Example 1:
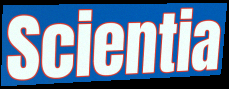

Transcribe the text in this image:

Scientia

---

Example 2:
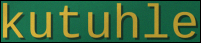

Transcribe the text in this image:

kutuhle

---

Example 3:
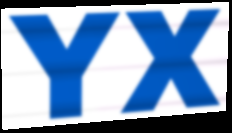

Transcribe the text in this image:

YX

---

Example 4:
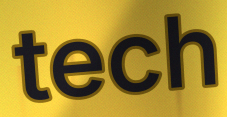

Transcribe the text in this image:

tech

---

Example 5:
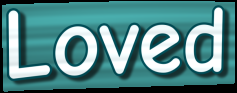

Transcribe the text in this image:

Loved